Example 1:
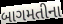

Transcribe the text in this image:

બાગમતીના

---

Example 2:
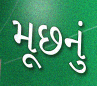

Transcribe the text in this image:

મૂછનું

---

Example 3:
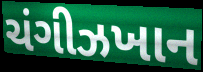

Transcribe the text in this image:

ચંગીઝખાન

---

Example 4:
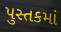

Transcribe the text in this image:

પુસ્તકમાં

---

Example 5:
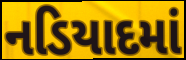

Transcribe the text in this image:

નડિયાદમાં